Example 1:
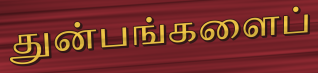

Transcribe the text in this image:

துன்பங்களைப்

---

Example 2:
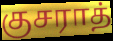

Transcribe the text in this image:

குசராத்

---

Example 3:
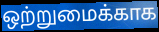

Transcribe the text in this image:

ஒற்றுமைக்காக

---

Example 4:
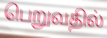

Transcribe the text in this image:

பெறுவதில்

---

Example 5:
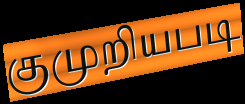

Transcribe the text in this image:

குமுறியபடி